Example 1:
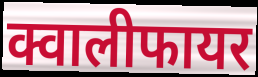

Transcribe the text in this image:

क्वालीफायर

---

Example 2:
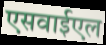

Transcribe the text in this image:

एसवाईएल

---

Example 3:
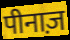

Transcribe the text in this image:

पीनाज़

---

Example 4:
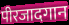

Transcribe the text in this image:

पीरजादगान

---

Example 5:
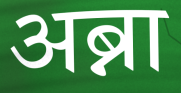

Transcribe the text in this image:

अब्ना